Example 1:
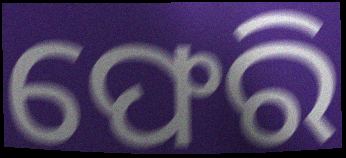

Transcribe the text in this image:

ଫେରି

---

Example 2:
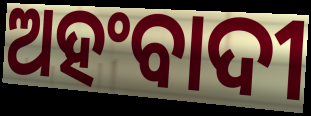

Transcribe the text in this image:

ଅହଂବାଦୀ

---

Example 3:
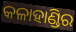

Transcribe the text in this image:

କଳାହାଣ୍ଡିର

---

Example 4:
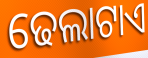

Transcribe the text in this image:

ଢେଲାଟାଏ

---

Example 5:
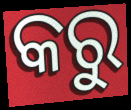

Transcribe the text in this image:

କରୁ